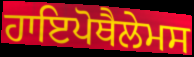
ਹਾਇਪੋਥੈਲੇਮਸ